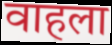
वाहला